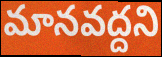
మానవద్దని